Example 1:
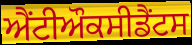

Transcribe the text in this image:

ਐਂਟੀਔਕਸੀਡੈਂਟਸ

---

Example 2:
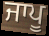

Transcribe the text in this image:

ਜਾਪੂ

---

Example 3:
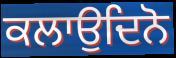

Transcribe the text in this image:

ਕਲਾਉਦਿਨੋ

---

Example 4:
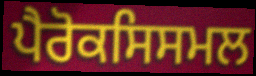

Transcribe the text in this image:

ਪੈਰੋਕਸਿਸਮਲ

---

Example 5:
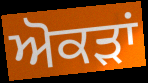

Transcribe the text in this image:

ਅੋਕੜਾਂ